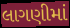
લાગણીમાં